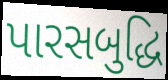
પારસબુદ્ધિ